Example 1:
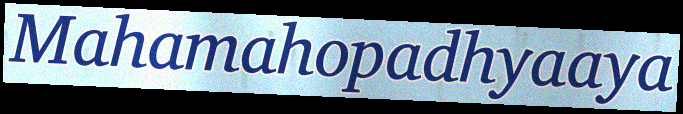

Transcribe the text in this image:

Mahamahopadhyaaya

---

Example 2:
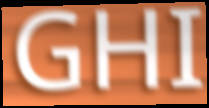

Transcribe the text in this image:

GHI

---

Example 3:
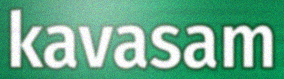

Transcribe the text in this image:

kavasam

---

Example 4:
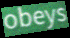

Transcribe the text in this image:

obeys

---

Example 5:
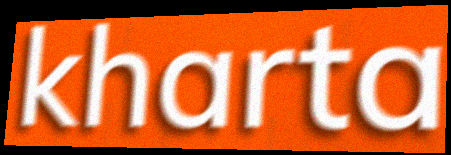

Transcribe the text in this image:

kharta